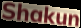
Shakun